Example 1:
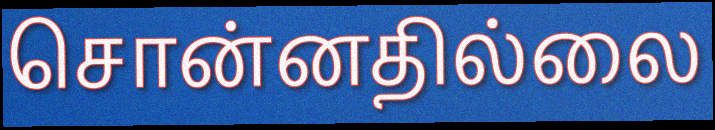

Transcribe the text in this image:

சொன்னதில்லை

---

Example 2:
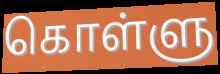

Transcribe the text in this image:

கொள்ளு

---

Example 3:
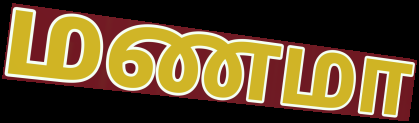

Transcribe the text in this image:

மணமா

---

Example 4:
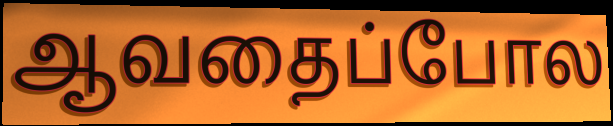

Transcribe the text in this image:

ஆவதைப்போல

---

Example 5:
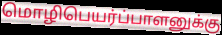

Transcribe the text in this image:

மொழிபெயர்ப்பாளனுக்கு